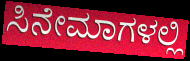
ಸಿನೇಮಾಗಳಲ್ಲಿ